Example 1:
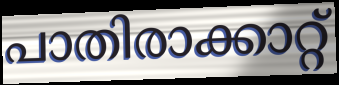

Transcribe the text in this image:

പാതിരാക്കാറ്റ്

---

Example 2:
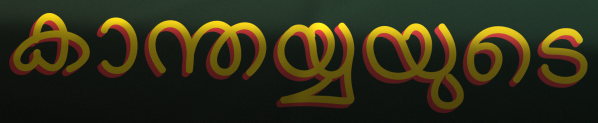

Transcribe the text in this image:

കാന്തയ്യയുടെ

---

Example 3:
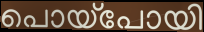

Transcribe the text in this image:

പൊയ്പോയി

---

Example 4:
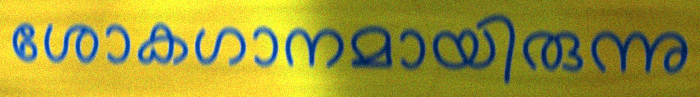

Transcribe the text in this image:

ശോകഗാനമായിരുന്നു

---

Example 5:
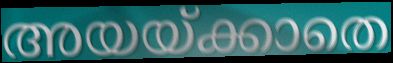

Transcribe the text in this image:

അയയ്ക്കാതെ